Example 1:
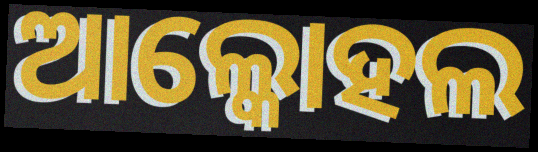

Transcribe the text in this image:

ଆଲ୍କୋହଲ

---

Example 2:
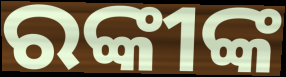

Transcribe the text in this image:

ରଙ୍କୀଙ୍କ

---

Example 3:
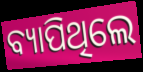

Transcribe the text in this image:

ବ୍ୟାପିଥିଲେ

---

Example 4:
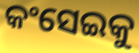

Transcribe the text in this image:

କଂସେଇକୁ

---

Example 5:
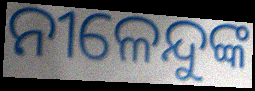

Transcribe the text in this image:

ନୀଳେନ୍ଦୁଙ୍କ